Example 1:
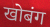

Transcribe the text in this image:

खोबंग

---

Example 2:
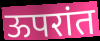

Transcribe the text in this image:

ऊपरांत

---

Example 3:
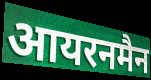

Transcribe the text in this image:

आयरनमैन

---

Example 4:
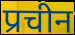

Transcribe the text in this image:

प्रचीन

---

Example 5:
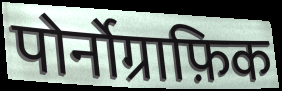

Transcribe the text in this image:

पोर्नोग्राफ़िक